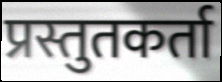
प्रस्तुतकर्ता